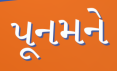
પૂનમને